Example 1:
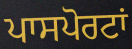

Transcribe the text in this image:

ਪਾਸਪੋਰਟਾਂ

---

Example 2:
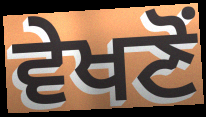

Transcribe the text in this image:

ਵੇਖਣੋਂ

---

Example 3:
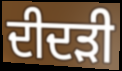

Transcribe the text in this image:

ਦੀਦੜੀ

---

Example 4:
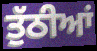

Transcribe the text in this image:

ਤੁੱਠੀਆਂ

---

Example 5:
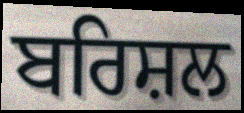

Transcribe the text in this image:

ਬਰਿਸ਼ਲ